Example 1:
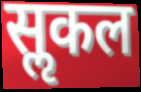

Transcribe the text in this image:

सॢकल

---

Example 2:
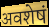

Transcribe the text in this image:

अवशेषं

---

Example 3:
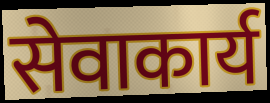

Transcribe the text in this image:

सेवाकार्य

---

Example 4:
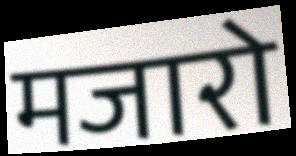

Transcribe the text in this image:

मजारो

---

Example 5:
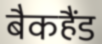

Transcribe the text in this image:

बैकहैंड